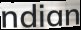
ndian